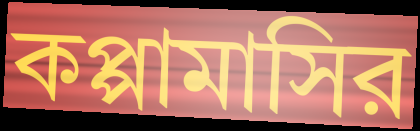
কপ্পামাসির